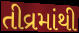
તીવ્રમાંથી